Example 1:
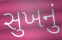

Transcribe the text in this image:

સુખનું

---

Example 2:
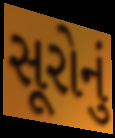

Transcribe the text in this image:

સૂરોનું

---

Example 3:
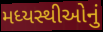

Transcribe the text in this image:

મધ્યસ્થીઓનું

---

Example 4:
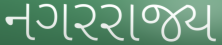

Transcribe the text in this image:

નગરરાજ્ય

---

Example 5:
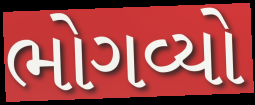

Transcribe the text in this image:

ભોગવ્યો